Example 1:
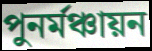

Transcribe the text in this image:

পুনর্মঞ্চায়ন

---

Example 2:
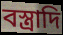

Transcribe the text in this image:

বস্ত্রাদি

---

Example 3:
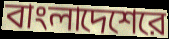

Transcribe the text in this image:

বাংলাদেশেরে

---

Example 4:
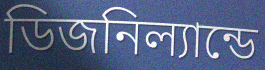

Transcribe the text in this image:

ডিজনিল্যান্ডে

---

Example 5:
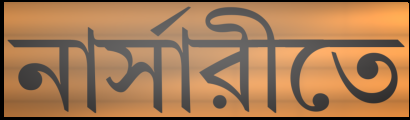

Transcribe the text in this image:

নার্সারীতে